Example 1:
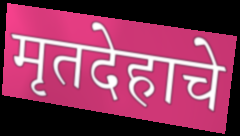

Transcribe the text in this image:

मृतदेहाचे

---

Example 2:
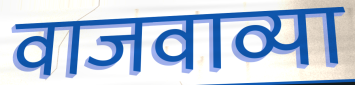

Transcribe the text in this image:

वाजवाव्या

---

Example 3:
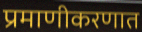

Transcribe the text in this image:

प्रमाणीकरणात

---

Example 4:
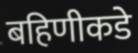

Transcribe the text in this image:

बहिणीकडे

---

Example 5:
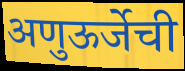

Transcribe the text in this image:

अणुऊर्जेची